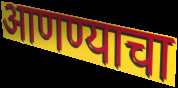
आणण्याचा